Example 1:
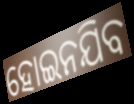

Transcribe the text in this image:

ହୋଇନଯିବ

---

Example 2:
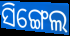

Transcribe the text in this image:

ସିଙ୍ଗେଲ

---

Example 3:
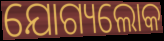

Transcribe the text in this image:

ଯୋଗ୍ୟଲୋକ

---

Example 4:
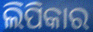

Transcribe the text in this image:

ଲିପିକାର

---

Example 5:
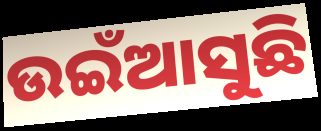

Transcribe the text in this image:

ଉଇଁଆସୁଛି